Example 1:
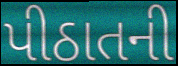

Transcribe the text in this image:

પીઠાતની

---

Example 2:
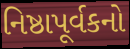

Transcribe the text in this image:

નિષ્ઠાપૂર્વકનો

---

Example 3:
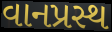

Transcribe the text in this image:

વાનપ્રસ્થ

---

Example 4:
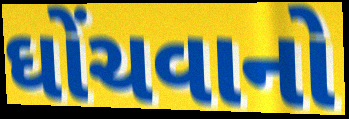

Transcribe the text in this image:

ઘોંચવાનો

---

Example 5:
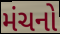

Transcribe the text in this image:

મંચનો